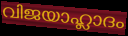
വിജയാഹ്ലാദം